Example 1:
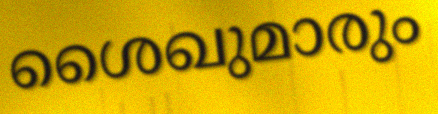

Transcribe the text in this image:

ശൈഖുമാരും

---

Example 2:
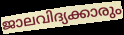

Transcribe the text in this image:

ജാലവിദ്യക്കാരും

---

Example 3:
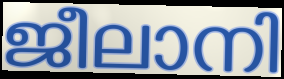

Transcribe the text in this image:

ജീലാനി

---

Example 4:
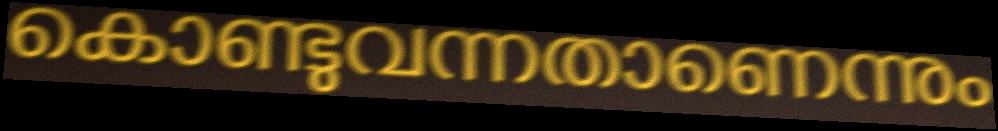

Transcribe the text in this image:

കൊണ്ടുവന്നതാണെന്നും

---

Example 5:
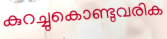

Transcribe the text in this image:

കുറച്ചുകൊണ്ടുവരിക